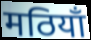
मठियाँ